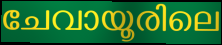
ചേവായൂരിലെ